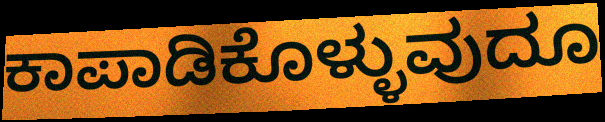
ಕಾಪಾಡಿಕೊಳ್ಳುವುದೂ